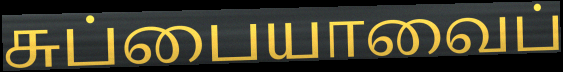
சுப்பையாவைப்